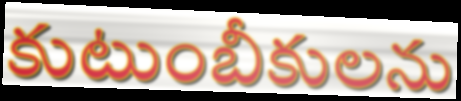
కుటుంబీకులను